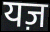
यज़